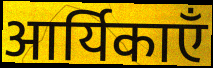
आर्यिकाएँ